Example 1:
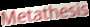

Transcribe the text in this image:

Metathesis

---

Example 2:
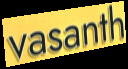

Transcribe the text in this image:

vasanth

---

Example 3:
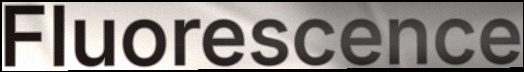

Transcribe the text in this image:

Fluorescence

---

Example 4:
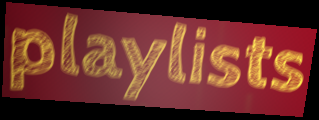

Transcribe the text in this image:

playlists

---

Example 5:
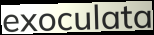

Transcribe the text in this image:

exoculata